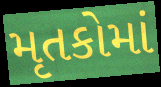
મૃતકોમાં